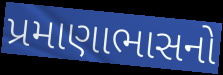
પ્રમાણાભાસનો